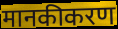
मानकीकरण